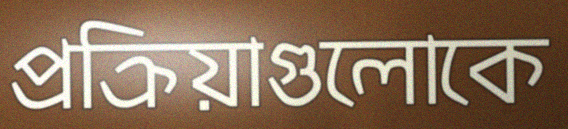
প্রক্রিয়াগুলোকে